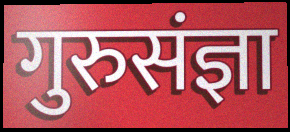
गुरुसंज्ञा